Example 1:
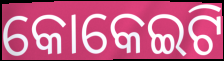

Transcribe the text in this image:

କୋକେଇଟି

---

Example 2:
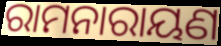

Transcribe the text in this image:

ରାମନାରାୟଣ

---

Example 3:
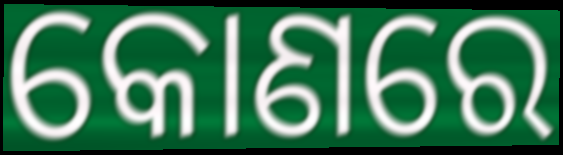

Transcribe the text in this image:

କୋଣରେ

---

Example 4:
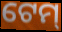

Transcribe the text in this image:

ଟେମ୍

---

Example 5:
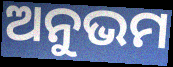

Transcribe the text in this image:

ଅନୁଭମ